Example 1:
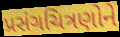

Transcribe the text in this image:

પ્રસંગચિત્રણોને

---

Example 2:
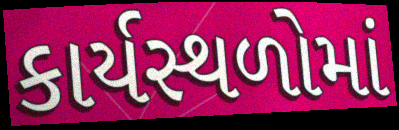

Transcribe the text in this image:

કાર્યસ્થળોમાં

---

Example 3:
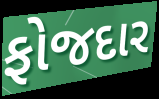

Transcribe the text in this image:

ફોજદાર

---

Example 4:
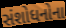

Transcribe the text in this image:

સંશોધનોના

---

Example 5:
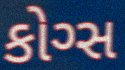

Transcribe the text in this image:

કોગ્સ